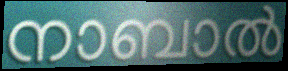
നാബാൽ